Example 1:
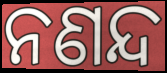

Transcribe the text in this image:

ନଣନ୍ଦ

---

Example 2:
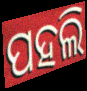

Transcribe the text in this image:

ପହଲି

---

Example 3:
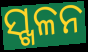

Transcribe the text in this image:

ସ୍ଖଳନ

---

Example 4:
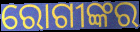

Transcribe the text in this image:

ରୋଗୀଙ୍କର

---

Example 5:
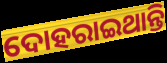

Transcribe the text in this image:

ଦୋହରାଇଥାନ୍ତି